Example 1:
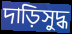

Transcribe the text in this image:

দাড়িসুদ্ধ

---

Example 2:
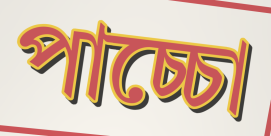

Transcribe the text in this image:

পাচ্চো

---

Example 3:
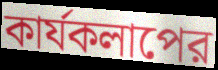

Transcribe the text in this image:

কার্যকলাপের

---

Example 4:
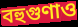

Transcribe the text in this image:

বহুগুণাও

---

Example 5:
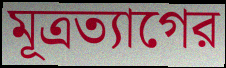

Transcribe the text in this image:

মূত্রত্যাগের